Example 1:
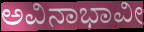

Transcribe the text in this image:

ಅವಿನಾಭಾವೀ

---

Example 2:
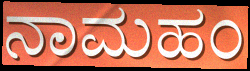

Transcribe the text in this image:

ನಾಮಹಂ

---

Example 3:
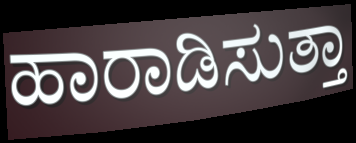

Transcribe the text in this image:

ಹಾರಾಡಿಸುತ್ತಾ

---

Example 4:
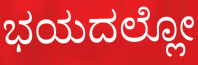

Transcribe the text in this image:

ಭಯದಲ್ಲೋ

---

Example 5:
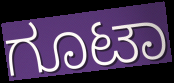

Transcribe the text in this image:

ಗೂಟಾ